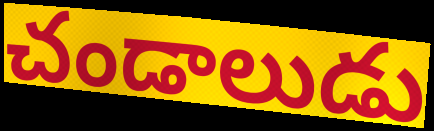
చండాలుడు